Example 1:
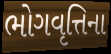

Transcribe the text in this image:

ભોગવૃત્તિના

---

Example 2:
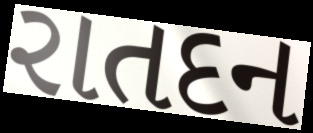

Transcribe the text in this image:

રાતદન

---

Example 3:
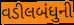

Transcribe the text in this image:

વડીલબંધુની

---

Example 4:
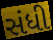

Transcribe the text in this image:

સંધી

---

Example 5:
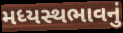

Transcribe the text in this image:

મધ્યસ્થભાવનું